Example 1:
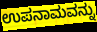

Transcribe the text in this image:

ಉಪನಾಮವನ್ನು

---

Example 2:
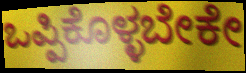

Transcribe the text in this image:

ಒಪ್ಪಿಕೊಳ್ಳಬೇಕೇ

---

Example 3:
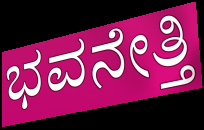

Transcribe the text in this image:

ಭವನೇತ್ತಿ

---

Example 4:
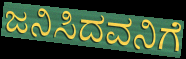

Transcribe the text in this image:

ಜನಿಸಿದವನಿಗೆ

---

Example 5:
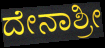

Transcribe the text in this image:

ದೇನಾಶ್ರೀ